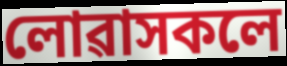
লোৱাসকলে